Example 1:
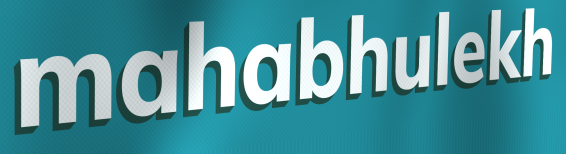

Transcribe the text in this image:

mahabhulekh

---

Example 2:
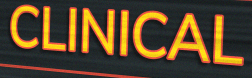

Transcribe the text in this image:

CLINICAL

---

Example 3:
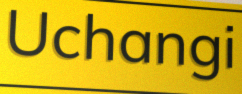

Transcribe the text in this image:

Uchangi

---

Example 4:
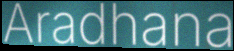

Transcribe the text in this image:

Aradhana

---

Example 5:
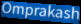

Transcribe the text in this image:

Omprakash